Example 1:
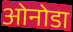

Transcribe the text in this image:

ओनोडा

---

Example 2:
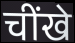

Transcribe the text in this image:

चींखे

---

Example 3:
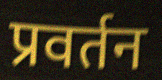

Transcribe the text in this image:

प्रवर्तन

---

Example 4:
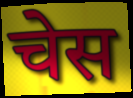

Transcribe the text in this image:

चेस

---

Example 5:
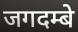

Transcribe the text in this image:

जगदम्बे